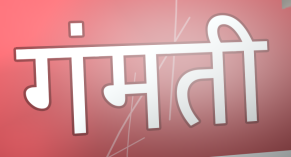
गंमती